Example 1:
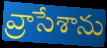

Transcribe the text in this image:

వ్రాసేశాను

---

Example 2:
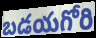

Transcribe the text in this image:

బడయగోరి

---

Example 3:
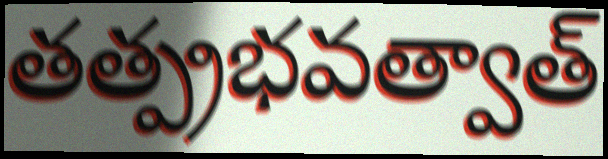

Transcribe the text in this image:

తత్ప్రభవత్వాత్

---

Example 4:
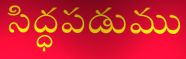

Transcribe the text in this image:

సిద్ధపడుము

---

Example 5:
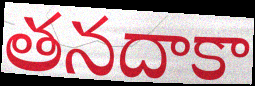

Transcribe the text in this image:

తనదాకా